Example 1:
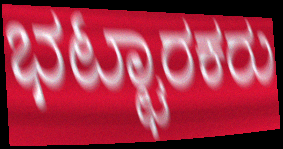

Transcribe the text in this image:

ಭಟ್ಟಾರಕರು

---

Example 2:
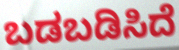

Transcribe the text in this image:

ಬಡಬಡಿಸಿದೆ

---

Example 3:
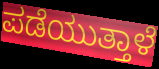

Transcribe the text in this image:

ಪಡೆಯುತ್ತಾಳೆ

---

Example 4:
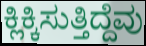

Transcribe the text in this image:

ಕ್ಲಿಕ್ಕಿಸುತ್ತಿದ್ದೆವು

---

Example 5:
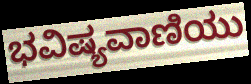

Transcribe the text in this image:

ಭವಿಷ್ಯವಾಣಿಯು